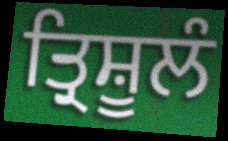
ਤ੍ਰਿਸ਼ੂਲੰ